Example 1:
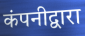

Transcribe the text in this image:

कंपनीद्वारा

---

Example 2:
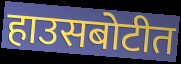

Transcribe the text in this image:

हाउसबोटीत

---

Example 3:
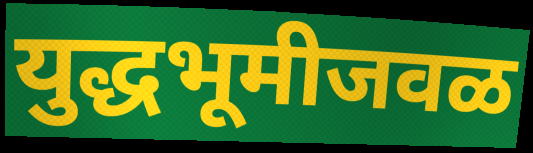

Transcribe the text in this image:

युद्धभूमीजवळ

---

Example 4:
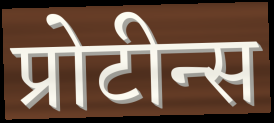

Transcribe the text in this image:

प्रोटीन्स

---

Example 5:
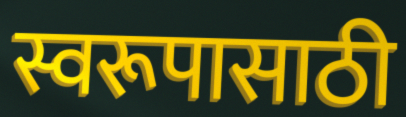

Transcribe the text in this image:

स्वरूपासाठी